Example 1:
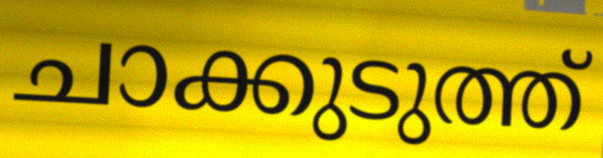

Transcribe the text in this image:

ചാക്കുടുത്ത്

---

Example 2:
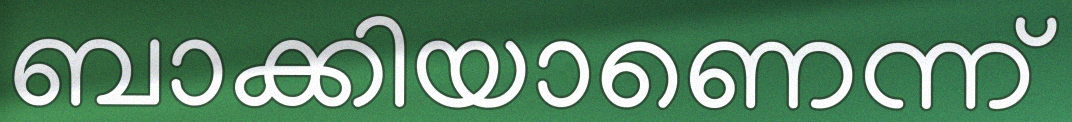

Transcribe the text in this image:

ബാക്കിയാണെന്ന്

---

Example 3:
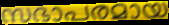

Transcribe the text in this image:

സഭാപരമായ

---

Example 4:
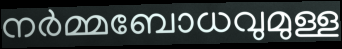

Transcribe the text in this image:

നർമ്മബോധവുമുള്ള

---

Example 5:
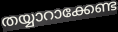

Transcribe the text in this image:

തയ്യാറാക്കേണ്ട